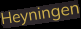
Heyningen